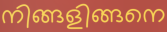
നിങ്ങളിങ്ങനെ